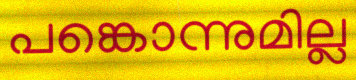
പങ്കൊന്നുമില്ല